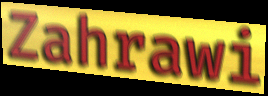
Zahrawi